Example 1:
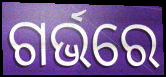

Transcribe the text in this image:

ଗର୍ଭରେ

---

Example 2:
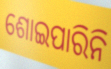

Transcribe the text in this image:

ଶୋଇପାରିନି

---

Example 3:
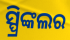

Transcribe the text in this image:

ସ୍ପ୍ରିଙ୍କଲର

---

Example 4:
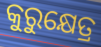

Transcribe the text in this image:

କୁରୁକ୍ଷେତ୍ର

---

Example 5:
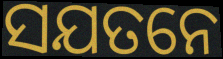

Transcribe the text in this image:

ସଯତନେ